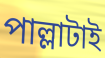
পাল্লাটাই